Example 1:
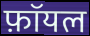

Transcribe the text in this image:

फ़ॉयल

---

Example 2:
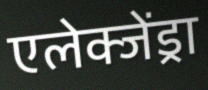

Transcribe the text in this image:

एलेक्जेंड्रा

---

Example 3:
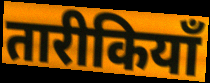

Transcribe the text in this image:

तारीकियाँ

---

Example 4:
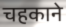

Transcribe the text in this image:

चहकाने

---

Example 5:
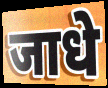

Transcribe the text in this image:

जाधे